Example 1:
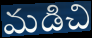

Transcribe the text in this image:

మడిచి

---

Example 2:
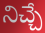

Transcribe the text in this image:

నిచ్చే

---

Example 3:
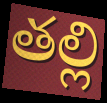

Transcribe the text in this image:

తల్లి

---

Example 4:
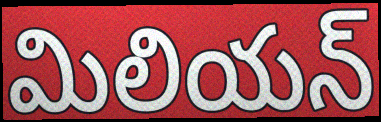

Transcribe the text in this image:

మిలియన్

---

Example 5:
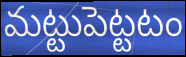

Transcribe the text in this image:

మట్టుపెట్టటం